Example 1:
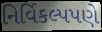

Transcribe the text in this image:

નિર્વિકલ્પપણે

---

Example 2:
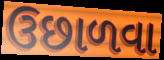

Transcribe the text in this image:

ઉછાળવા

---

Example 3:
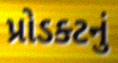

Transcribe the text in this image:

પ્રોડક્ટનું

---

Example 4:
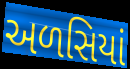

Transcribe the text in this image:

અળસિયાં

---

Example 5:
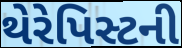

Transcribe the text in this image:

થેરેપિસ્ટની